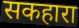
सकहारा